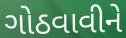
ગોઠવાવીને